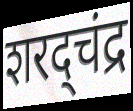
शरद्चंद्र